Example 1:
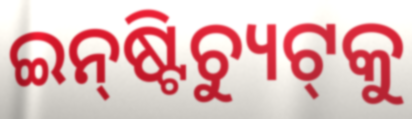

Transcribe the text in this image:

ଇନ୍‌ଷ୍ଟିଚ୍ୟୁଟ୍‌କୁ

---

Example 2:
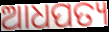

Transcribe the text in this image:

ଆଧପତ୍ୟ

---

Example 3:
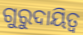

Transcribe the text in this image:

ଗୁରୁଦାୟିତ୍ୱ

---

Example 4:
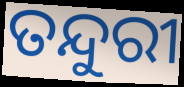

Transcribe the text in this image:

ତନ୍ଦୁରୀ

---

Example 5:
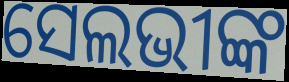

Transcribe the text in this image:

ସେଲଭୀଙ୍କ